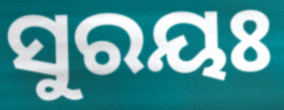
ସୁରୟଃ